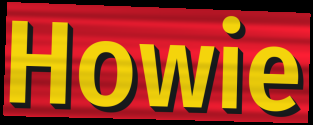
Howie